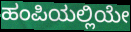
ಹಂಪಿಯಲ್ಲಿಯೇ